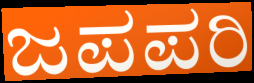
ಜಪಪರಿ